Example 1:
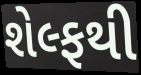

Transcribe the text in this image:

શેલ્ફથી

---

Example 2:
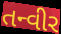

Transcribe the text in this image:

તન્વીર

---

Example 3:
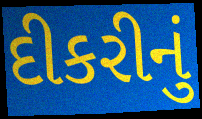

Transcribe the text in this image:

દીકરીનું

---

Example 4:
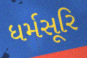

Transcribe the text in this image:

ધર્મસૂરિ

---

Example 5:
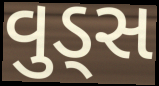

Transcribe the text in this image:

વુડ્સ